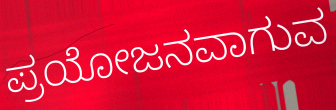
ಪ್ರಯೋಜನವಾಗುವ